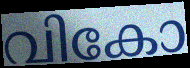
വികോ